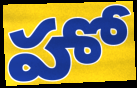
హో